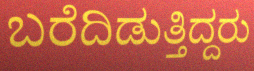
ಬರೆದಿಡುತ್ತಿದ್ದರು